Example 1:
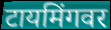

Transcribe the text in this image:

टायमिंगवर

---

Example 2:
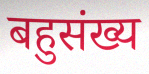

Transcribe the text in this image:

बहुसंख्य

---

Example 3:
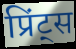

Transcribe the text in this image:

प्रिंट्स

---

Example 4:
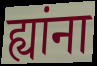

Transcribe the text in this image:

ह्यांना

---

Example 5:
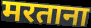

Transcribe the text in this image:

मरताना